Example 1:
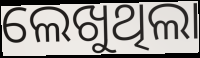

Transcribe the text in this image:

ଲେଖୁଥିଲା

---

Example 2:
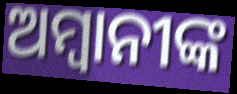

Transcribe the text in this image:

ଅମ୍ବାନୀଙ୍କ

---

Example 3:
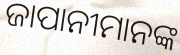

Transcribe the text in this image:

ଜାପାନୀମାନଙ୍କ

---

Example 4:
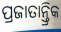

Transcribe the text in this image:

ପ୍ରଜାତାନ୍ତ୍ରିକ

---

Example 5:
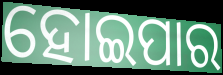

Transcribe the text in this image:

ହୋଇପାର